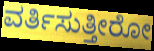
ವರ್ತಿಸುತ್ತೀರೋ